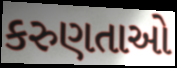
કરુણતાઓ